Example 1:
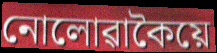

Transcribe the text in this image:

নোলোৱাকৈয়ে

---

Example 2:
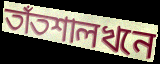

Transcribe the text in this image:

তাঁতশালখনে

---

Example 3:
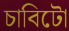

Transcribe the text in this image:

চাবিটো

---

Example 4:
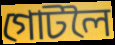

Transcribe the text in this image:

গোটলৈ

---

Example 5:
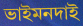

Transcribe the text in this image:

ভাইমনদাই